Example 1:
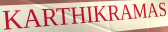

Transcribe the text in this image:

KARTHIKRAMAS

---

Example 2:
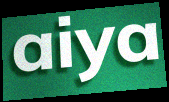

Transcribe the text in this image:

aiya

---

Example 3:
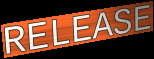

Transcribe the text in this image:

RELEASE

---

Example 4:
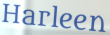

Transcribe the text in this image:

Harleen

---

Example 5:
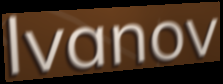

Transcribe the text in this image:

Ivanov